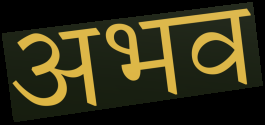
अभव